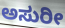
ಅಸುರೀ